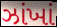
ઝાંખાં